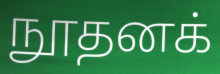
நூதனக்